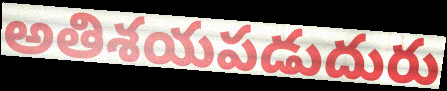
అతిశయపడుదురు